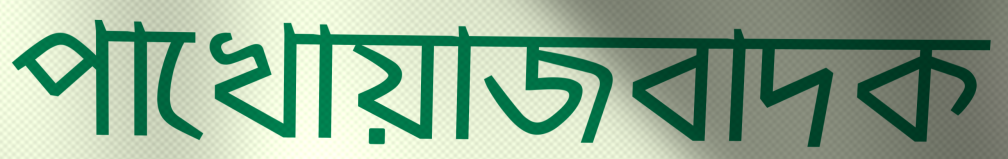
পাখোয়াজবাদক